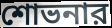
শোভনার